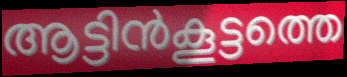
ആട്ടിൻകൂട്ടത്തെ